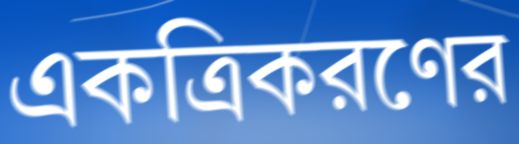
একত্রিকরণের